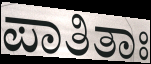
ಪಾತಿತಾಃ